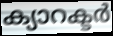
ക്യാറക്ടർ